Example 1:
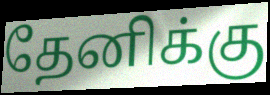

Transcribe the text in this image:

தேனிக்கு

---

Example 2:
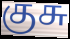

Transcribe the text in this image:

குசு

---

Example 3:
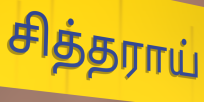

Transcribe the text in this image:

சித்தராய்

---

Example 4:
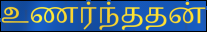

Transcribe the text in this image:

உணர்ந்ததன்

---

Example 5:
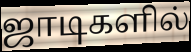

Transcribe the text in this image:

ஜாடிகளில்